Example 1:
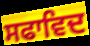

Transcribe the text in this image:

ਸਫਾਵਿਦ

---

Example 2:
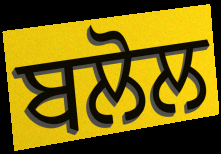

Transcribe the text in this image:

ਬਲੋਲ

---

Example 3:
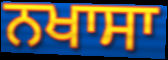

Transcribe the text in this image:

ਨਖਾਸਾ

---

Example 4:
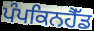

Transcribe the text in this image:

ਪੰਪਕਿਨਹੈੱਡ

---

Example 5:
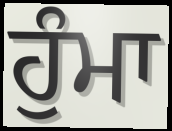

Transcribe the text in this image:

ਹੁੰਮਾ